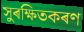
সুৰক্ষিতকৰণ